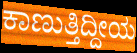
ಕಾಣುತ್ತಿದ್ದೀಯ